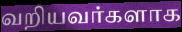
வறியவர்களாக